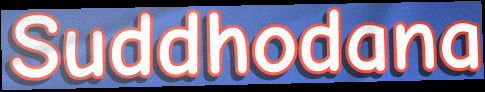
Suddhodana